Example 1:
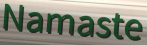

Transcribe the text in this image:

Namaste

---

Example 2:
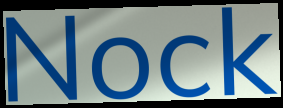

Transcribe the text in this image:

Nock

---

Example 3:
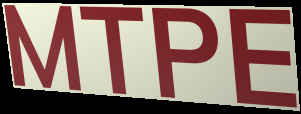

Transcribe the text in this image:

MTPE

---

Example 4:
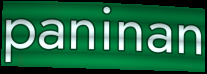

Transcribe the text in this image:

paninan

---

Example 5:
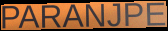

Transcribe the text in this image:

PARANJPE